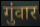
गुंवार